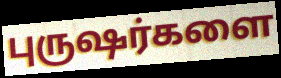
புருஷர்களை